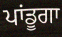
ਪਾਂਡੂਗਾ